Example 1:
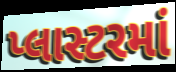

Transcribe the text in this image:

પ્લાસ્ટરમાં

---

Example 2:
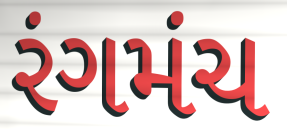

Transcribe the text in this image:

રંગમંચ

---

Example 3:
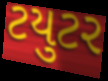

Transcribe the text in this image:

ટયુટર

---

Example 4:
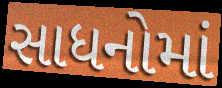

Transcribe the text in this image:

સાધનોમાં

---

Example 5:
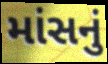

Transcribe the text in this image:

માંસનું